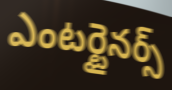
ఎంటర్టైనర్స్